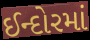
ઈન્દોરમાં